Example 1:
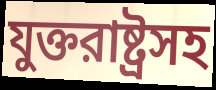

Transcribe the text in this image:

যুক্তরাষ্ট্রসহ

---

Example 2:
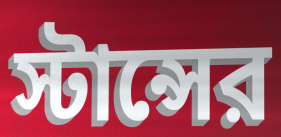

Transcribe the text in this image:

স্টান্সের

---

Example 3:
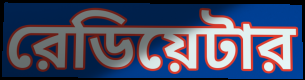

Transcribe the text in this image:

রেডিয়েটার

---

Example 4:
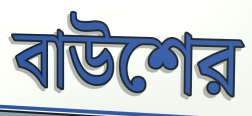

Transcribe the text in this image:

বাউশের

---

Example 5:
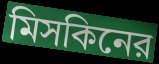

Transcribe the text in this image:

মিসকিনের